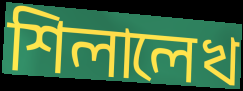
শিলালেখ